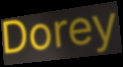
Dorey